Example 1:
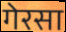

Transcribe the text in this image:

गेरसा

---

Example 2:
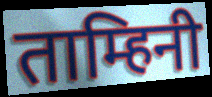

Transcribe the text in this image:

ताम्हिनी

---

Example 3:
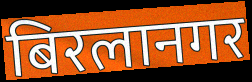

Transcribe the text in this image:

बिरलानगर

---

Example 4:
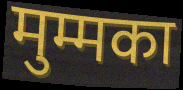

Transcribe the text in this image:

मुम्मका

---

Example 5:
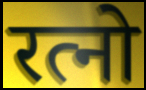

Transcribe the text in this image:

रत्नो